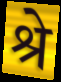
श्रे